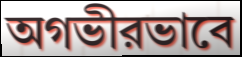
অগভীরভাবে